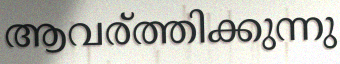
ആവര്ത്തിക്കുന്നു